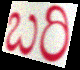
ಬರಿ